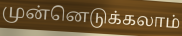
முன்னெடுக்கலாம்